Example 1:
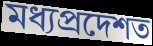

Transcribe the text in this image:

মধ্যপ্ৰদেশত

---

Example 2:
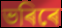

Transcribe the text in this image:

ভৰিৰে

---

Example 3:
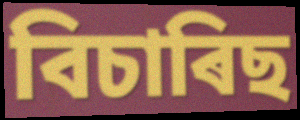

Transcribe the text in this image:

বিচাৰিছ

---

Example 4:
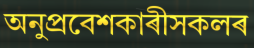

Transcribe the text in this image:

অনুপ্ৰবেশকাৰীসকলৰ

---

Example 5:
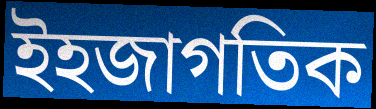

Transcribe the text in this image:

ইহজাগতিক